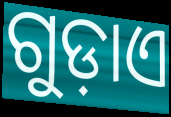
ଗୁଡ଼ାଏ